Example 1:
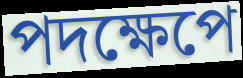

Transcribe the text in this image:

পদক্ষেপে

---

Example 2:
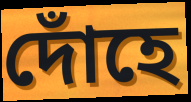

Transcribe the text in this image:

দোঁহে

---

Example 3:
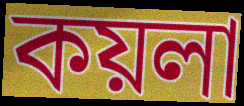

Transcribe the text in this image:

কয়লা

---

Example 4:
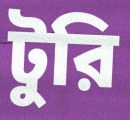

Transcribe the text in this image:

টুরি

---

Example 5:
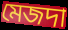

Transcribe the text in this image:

মেজদা